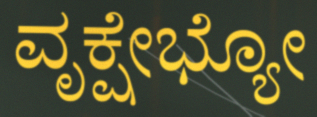
ವೃಕ್ಷೇಭ್ಯೋ